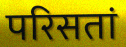
परिसतां